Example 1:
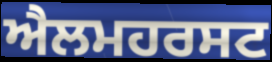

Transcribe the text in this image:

ਐਲਮਹਰਸਟ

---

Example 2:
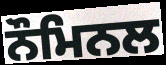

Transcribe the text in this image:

ਨੌਮਿਨਲ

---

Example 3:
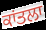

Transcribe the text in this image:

ਕਾਂਤਲਾ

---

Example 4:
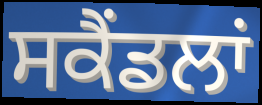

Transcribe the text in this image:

ਸਕੈਂਡਲਾਂ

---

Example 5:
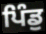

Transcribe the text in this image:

ਪਿੰਡੁ